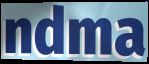
ndma